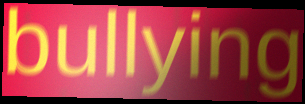
bullying